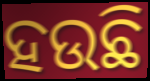
ହଉଛି